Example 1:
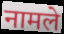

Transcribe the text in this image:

नामले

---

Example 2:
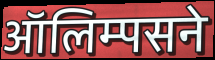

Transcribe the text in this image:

ऑलिम्पसने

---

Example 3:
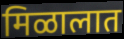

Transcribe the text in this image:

मिळालात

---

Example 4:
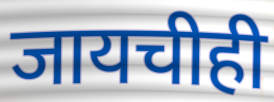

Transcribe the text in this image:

जायचीही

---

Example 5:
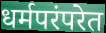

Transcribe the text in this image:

धर्मपरंपरेत